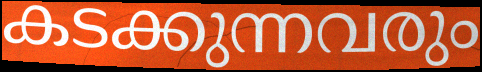
കടക്കുന്നവരും